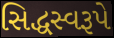
સિદ્ધસ્વરૂપે